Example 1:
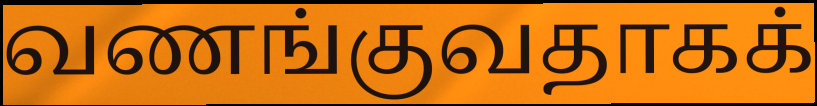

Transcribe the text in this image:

வணங்குவதாகக்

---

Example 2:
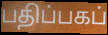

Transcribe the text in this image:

பதிப்பகப்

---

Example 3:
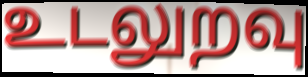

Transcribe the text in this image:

உடலுறவு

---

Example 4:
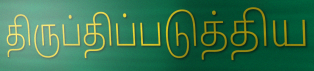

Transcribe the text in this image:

திருப்திப்படுத்திய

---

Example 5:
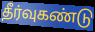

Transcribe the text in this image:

தீர்வுகண்டு